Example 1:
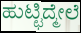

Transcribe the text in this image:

ಹುಟ್ಟಿದ್ಮೇಲೆ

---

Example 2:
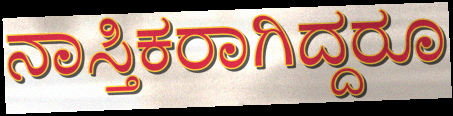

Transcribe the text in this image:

ನಾಸ್ತಿಕರಾಗಿದ್ದರೂ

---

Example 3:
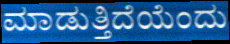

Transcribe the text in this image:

ಮಾಡುತ್ತಿದೆಯೆಂದು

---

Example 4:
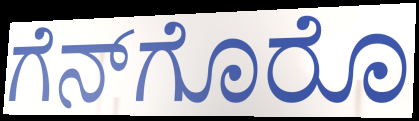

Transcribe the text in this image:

ಗೆನ್‌ಗೊರೊ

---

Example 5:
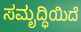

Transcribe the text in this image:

ಸಮೃದ್ಧಿಯಿದೆ